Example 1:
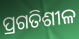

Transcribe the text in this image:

ପ୍ରଗତିଶୀଳ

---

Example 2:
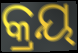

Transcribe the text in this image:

କ୍ରୟ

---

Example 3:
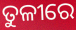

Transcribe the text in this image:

ତୁଳୀରେ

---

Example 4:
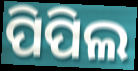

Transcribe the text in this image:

ପିପିଲ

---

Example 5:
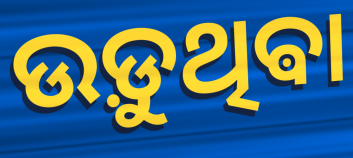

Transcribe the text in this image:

ଉଡ଼ୁଥିଵା